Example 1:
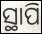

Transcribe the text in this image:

ସ୍ଥାପି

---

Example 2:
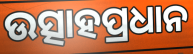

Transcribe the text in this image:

ଉତ୍ସାହପ୍ରଧାନ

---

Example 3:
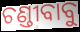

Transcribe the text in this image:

ଚଣ୍ଡୀବାବୁ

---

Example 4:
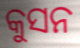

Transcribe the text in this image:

କୁସନ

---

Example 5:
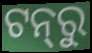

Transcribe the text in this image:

ଟନ୍‍ରୁ